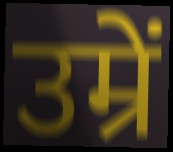
उम्रें